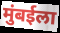
मुंबईला